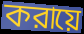
করায়ে